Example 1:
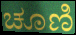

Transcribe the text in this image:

ಚೂಣಿ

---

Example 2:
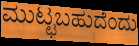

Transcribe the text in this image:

ಮುಟ್ಟಬಹುದೆಂದು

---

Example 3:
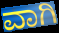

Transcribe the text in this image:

ವಾಗಿ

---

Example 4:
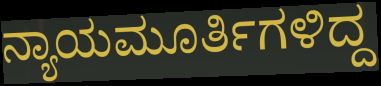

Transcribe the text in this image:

ನ್ಯಾಯಮೂರ್ತಿಗಳಿದ್ದ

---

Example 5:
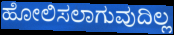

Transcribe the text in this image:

ಹೋಲಿಸಲಾಗುವುದಿಲ್ಲ